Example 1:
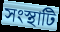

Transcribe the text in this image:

সংস্থাটি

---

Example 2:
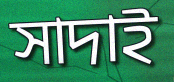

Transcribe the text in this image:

সাদাই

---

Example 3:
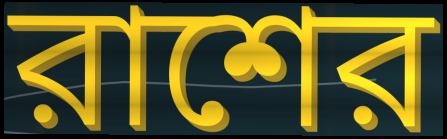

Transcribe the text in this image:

রাশের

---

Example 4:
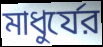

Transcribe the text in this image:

মাধুর্যের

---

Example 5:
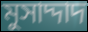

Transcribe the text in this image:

মুসাদ্দাদ